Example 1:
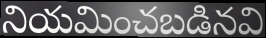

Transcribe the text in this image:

నియమించబడినవి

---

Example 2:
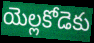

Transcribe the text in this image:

యెల్లకోడెకు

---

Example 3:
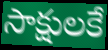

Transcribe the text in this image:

సాక్షులకే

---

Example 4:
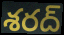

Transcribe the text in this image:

శరద్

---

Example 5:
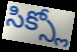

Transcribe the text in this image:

సిక్స్లో